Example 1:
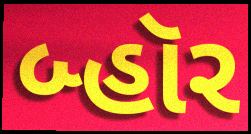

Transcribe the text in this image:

બ્હૉર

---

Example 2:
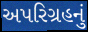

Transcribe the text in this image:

અપરિગ્રહનું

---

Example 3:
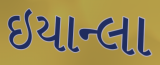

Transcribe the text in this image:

ઇયાન્લા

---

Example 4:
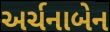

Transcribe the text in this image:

અર્ચનાબેન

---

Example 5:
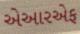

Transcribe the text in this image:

એઆરએફ